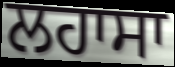
ਲਹਾਸਾ